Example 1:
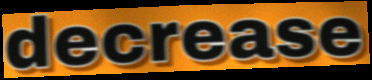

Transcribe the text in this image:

decrease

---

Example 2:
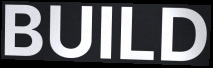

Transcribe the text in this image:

BUILD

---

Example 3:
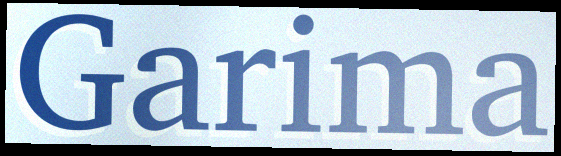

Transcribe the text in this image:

Garima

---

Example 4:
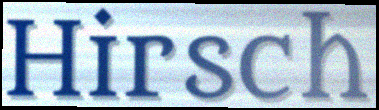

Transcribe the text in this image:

Hirsch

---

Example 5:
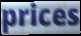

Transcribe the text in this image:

prices